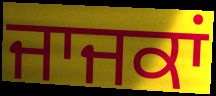
ਜਾਜਕਾਂ